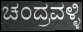
ಚಂದ್ರವಳ್ಳಿ